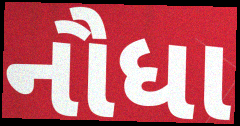
નૌધા